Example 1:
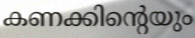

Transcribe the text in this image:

കണക്കിന്റെയും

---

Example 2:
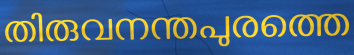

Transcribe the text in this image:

തിരുവനന്തപുരത്തെ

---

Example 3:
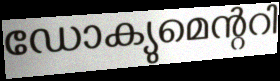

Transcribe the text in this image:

ഡോക്യുമെന്ററി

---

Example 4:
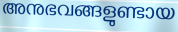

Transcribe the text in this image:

അനുഭവങ്ങളുണ്ടായ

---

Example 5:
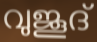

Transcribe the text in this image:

വുജൂദ്